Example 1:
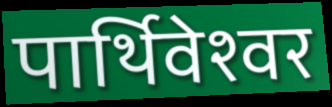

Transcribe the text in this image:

पार्थिवेश्वर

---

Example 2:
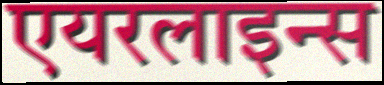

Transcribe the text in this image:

एयरलाइन्स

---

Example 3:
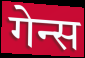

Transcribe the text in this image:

गेन्स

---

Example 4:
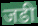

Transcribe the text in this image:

जडी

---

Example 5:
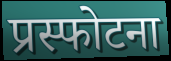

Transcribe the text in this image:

प्रस्फोटना